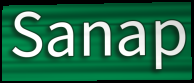
Sanap